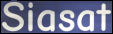
Siasat